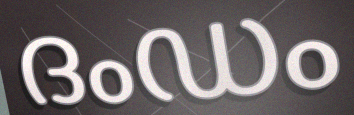
ദംഡം